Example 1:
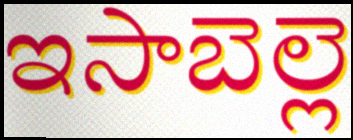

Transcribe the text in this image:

ఇసాబెల్లె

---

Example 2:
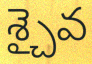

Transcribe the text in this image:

శ్చైవ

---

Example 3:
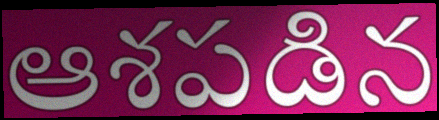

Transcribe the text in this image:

ఆశపడిన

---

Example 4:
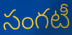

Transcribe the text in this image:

సంగటీ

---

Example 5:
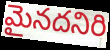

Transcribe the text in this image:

మైనదనిరి